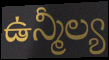
ఉన్మీల్య